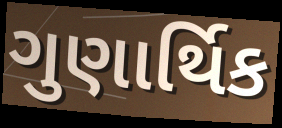
ગુણાર્થિક